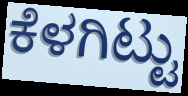
ಕೆಳಗಿಟ್ಟು